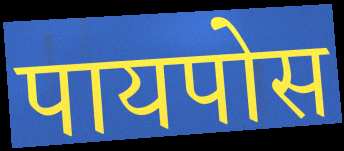
पायपोस